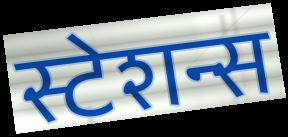
स्टेशन्स